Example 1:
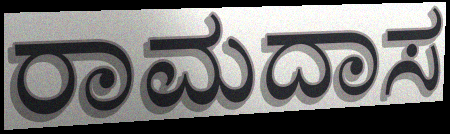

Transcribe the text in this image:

ರಾಮದಾಸ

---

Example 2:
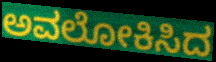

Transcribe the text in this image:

ಅವಲೋಕಿಸಿದ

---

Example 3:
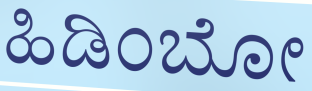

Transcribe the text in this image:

ಹಿಡಿಂಬೋ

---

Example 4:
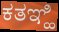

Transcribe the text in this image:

ಕತಞ್ಹಿ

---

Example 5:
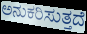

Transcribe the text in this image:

ಅನುಕರಿಸುತ್ತದೆ